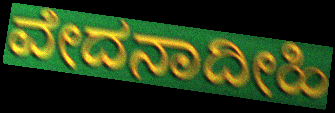
ವೇದನಾದೀಹಿ